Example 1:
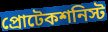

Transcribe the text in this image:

প্রোটেকশনিস্ট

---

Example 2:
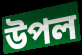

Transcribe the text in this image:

উপল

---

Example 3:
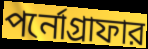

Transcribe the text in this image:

পর্নোগ্রাফার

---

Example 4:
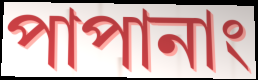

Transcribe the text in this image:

পাপানাং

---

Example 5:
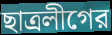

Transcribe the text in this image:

ছাত্রলীগের